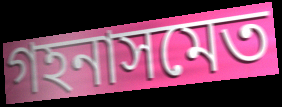
গহনাসমেত